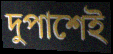
দুপাশেই